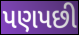
પણપછી